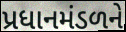
પ્રધાનમંડળને